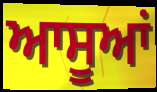
ਆਸੂਆਂ